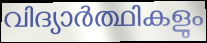
വിദ്യാർത്ഥികളും